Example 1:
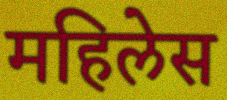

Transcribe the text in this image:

महिलेस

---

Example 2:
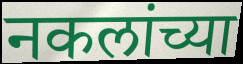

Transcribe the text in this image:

नकलांच्या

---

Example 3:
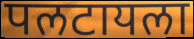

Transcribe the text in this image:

पलटायला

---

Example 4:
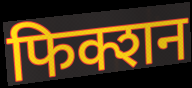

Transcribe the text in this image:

फिक्शन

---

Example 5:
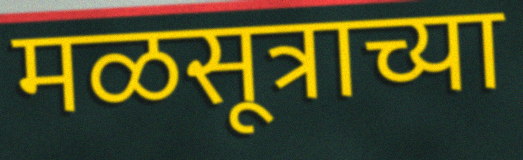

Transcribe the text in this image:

मळसूत्राच्या